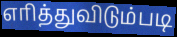
எரித்துவிடும்படி